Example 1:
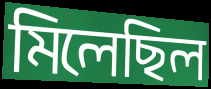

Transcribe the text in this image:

মিলেছিল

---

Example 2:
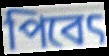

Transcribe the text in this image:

পিবেৎ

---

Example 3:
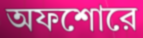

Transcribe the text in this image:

অফশোরে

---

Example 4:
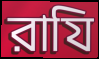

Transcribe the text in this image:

রাযি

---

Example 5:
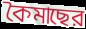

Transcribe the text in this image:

কৈমাছের